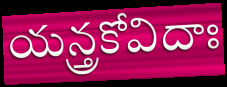
యన్త్రకోవిదాః